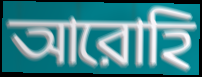
আরোহি